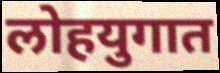
लोहयुगात